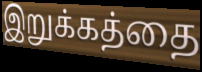
இறுக்கத்தை